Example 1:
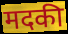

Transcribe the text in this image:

मदकी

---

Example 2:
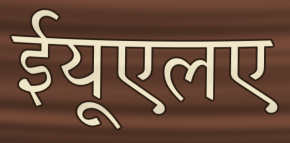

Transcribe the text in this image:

ईयूएलए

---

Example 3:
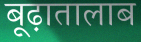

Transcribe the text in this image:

बूढ़ातालाब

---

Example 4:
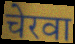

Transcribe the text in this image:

चेरवा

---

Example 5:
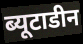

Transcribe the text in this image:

ब्यूटाडीन